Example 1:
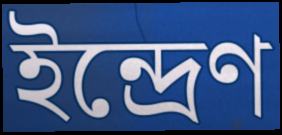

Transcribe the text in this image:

ইন্দ্রেণ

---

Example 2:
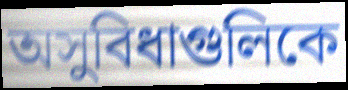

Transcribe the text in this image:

অসুবিধাগুলিকে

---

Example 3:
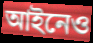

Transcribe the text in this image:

আইনেও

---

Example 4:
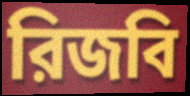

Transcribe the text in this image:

রিজবি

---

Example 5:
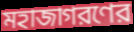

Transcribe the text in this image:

মহাজাগরণের